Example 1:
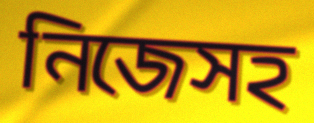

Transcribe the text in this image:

নিজেসহ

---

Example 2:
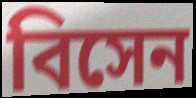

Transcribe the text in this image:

বিসেন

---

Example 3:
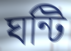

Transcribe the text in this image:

ঘন্টি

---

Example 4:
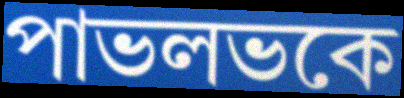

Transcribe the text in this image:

পাভলভকে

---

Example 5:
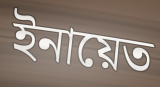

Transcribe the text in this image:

ইনায়েত